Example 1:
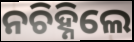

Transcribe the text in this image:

ନଚିହ୍ନିଲେ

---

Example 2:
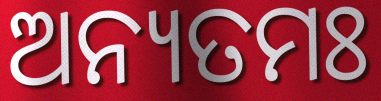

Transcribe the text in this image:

ଅନ୍ୟତମଃ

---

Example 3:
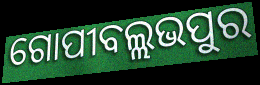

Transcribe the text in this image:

ଗୋପୀବଲ୍ଲଭପୁର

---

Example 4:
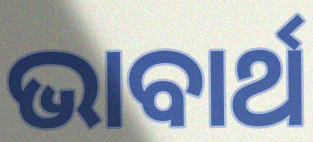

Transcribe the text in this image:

ଭାବାର୍ଥ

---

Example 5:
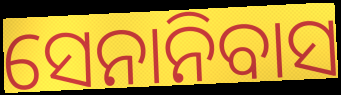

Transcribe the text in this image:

ସେନାନିବାସ